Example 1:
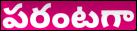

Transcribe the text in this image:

పరంటగా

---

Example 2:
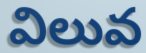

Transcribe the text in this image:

విలువ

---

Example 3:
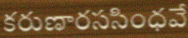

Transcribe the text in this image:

కరుణారససింధవే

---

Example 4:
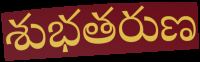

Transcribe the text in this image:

శుభతరుణ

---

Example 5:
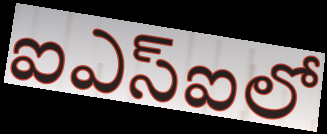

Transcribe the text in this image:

ఐఎస్ఐలో